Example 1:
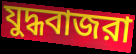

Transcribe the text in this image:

যুদ্ধবাজরা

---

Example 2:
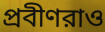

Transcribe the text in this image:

প্রবীণরাও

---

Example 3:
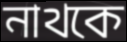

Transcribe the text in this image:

নাথকে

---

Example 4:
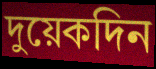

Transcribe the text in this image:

দুয়েকদিন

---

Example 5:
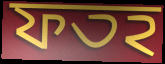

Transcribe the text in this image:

ফতহ